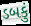
ડબકું